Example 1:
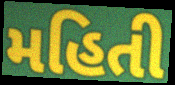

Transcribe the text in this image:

મહિતી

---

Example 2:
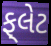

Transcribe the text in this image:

ફ્‌લેટ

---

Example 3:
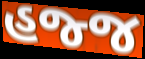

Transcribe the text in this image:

હજ્જ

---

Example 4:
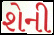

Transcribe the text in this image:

શેની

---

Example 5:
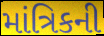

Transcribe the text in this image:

માંત્રિકની